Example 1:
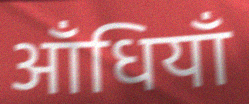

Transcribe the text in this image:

आँधियाँ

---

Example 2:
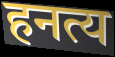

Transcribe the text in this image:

हनत्य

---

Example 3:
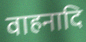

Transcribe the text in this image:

वाहनादि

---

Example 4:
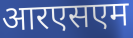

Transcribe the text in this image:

आरएसएम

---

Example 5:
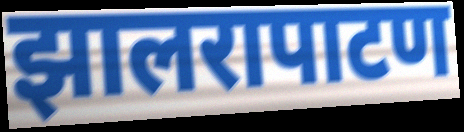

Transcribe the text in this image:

झालरापाटण